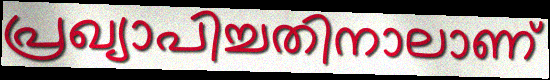
പ്രഖ്യാപിച്ചതിനാലാണ്